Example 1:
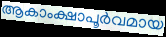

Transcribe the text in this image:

ആകാംക്ഷാപൂർവമായ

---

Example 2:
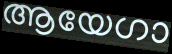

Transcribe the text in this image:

ആയേഗാ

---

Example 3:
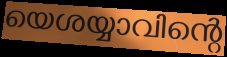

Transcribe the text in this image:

യെശയ്യാവിന്റെ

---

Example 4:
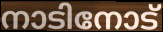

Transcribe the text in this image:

നാടിനോട്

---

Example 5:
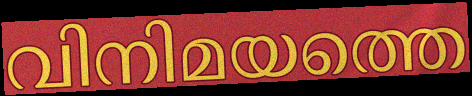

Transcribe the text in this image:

വിനിമയത്തെ